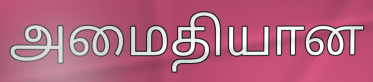
அமைதியான